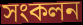
সংকলন